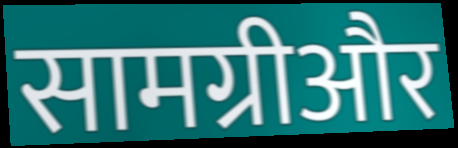
सामग्रीऔर